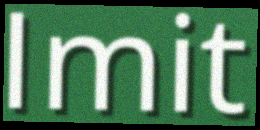
Imit